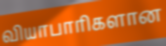
வியாபாரிகளான